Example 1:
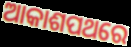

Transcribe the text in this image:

ଆକାଶପଥରେ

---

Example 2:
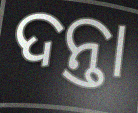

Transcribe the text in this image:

ଦନ୍ତା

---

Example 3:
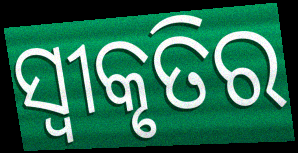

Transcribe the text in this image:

ସ୍ୱୀକୃତିର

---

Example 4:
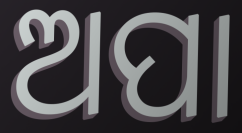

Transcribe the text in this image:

ଅପା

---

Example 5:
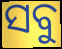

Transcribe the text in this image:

ସବୁ